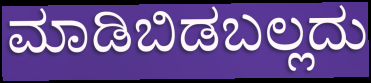
ಮಾಡಿಬಿಡಬಲ್ಲದು